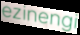
ezinengi